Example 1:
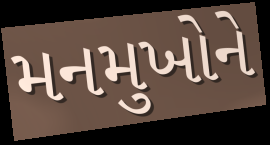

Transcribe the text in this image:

મનમુખોને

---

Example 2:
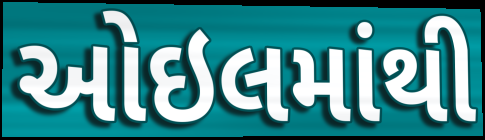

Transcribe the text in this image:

ઓઇલમાંથી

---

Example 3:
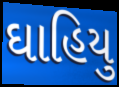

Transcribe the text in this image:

ઘાહિયુ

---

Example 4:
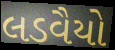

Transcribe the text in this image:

લડવૈયો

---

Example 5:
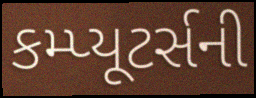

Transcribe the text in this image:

કમ્પ્યૂટર્સની